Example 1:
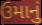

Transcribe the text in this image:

ઉમાનું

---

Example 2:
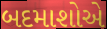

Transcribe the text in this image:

બદમાશોએ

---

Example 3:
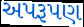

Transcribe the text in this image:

અપરૂપણ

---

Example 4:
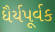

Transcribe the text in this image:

ધૈર્યપૂર્વક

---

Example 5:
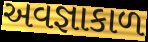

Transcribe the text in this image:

અવજ્ઞાકાળ